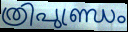
ത്രിപുണ്ഡ്രം